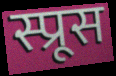
स्प्रूस